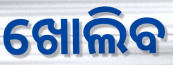
ଖୋଲିବ